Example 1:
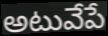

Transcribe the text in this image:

అటువేపే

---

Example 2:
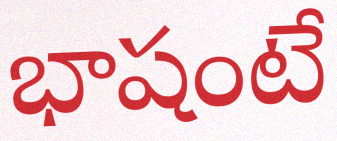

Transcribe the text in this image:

భాషంటే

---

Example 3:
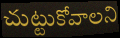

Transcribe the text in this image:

చుట్టుకోవాలని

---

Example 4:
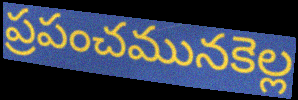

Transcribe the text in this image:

ప్రపంచమునకెల్ల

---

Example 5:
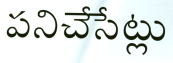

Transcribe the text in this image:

పనిచేసేట్లు